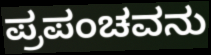
ಪ್ರಪಂಚವನು